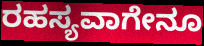
ರಹಸ್ಯವಾಗೇನೂ